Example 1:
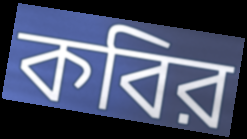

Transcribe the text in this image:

কবির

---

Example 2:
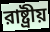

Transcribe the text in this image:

রাষ্ট্রীয়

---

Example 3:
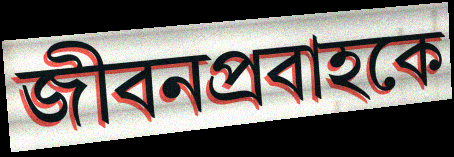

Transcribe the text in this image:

জীবনপ্রবাহকে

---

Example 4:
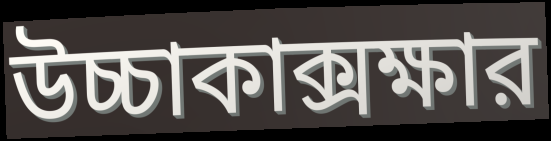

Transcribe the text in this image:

উচ্চাকাক্সক্ষার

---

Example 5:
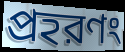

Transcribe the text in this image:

প্রহরণং